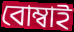
বোম্বাই